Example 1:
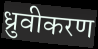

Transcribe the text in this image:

ध्रुवीकरण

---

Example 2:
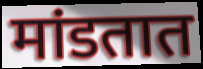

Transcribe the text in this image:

मांडतात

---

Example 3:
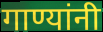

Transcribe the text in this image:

गाण्यांनी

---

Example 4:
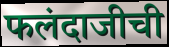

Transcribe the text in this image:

फलंदाजीची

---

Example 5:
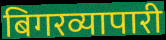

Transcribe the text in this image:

बिगरव्यापारी